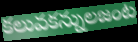
కలువకన్నులజంట